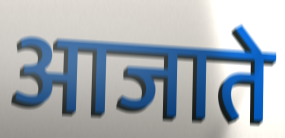
आजाते